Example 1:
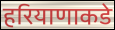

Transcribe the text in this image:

हरियाणाकडे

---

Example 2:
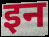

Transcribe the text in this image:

इन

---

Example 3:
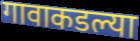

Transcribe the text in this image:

गावाकडल्या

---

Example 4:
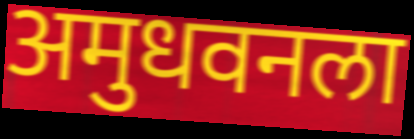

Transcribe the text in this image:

अमुधवनला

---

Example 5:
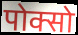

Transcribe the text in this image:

पोक्सो